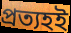
প্রত্যহই